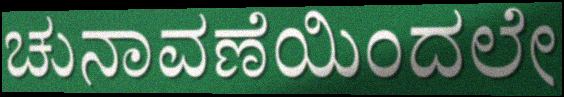
ಚುನಾವಣೆಯಿಂದಲೇ